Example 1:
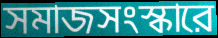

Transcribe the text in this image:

সমাজসংস্কারে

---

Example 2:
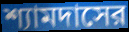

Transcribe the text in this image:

শ্যামদাসের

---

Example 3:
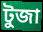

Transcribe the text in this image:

টুজা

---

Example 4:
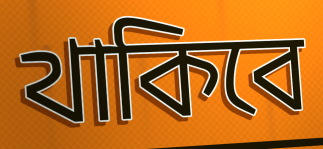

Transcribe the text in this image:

থাকিবে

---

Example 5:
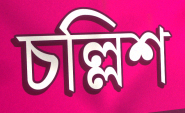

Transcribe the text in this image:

চল্লিশ